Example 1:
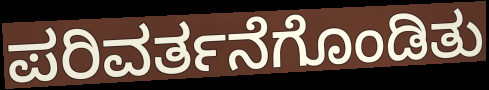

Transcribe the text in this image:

ಪರಿವರ್ತನೆಗೊಂಡಿತು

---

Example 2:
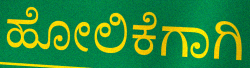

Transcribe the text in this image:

ಹೋಲಿಕೆಗಾಗಿ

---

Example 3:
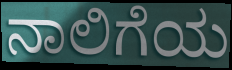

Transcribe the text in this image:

ನಾಲಿಗೆಯ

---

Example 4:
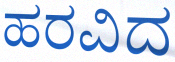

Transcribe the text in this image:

ಹರವಿದ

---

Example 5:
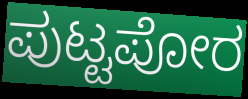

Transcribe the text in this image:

ಪುಟ್ಟಪೋರ